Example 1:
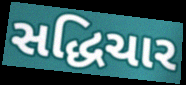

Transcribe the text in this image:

સદ્ધિચાર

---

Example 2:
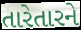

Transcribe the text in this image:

તારેતારને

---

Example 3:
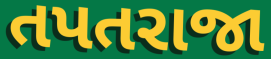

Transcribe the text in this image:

તપતરાજા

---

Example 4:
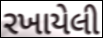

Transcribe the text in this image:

રખાયેલી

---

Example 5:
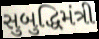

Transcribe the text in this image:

સુબુદ્ધિમંત્રી